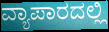
ವ್ಯಾಪಾರದಲ್ಲಿ